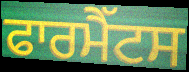
ਫਾਰਮੈੱਟਸ